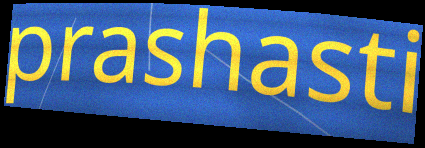
prashasti